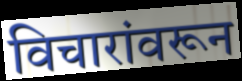
विचारांवरून